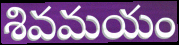
శివమయం